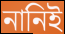
নানিই